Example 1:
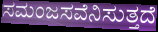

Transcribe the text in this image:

ಸಮಂಜಸವೆನಿಸುತ್ತದೆ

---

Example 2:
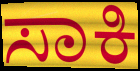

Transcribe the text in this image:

ಸಾಕಿ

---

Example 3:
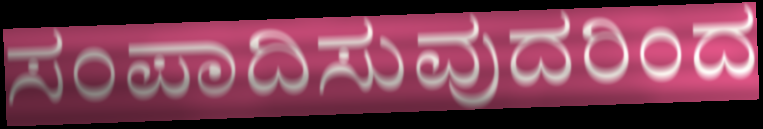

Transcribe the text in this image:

ಸಂಪಾದಿಸುವುದರಿಂದ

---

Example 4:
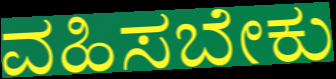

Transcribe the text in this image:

ವಹಿಸಬೇಕು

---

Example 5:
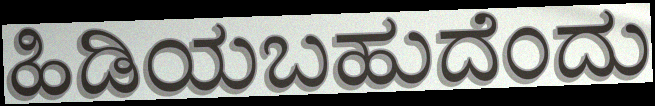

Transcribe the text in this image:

ಹಿಡಿಯಬಹುದೆಂದು